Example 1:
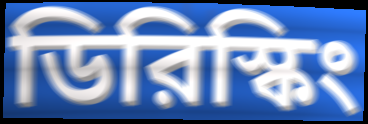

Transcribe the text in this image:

ডিরিস্কিং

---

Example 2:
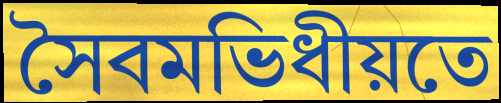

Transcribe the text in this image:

সৈবমভিধীয়তে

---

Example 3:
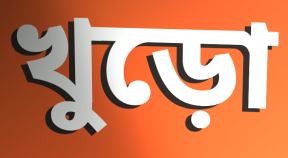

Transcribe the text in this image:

খুড়ো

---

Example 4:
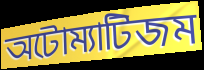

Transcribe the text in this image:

অটোম্যাটিজম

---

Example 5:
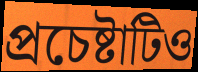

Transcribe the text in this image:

প্রচেষ্টাটিও